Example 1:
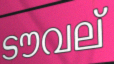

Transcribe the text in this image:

ടൗവല്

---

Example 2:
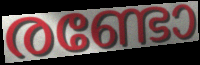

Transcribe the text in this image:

രണ്ടോ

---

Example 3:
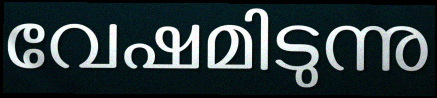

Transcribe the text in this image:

വേഷമിടുന്നു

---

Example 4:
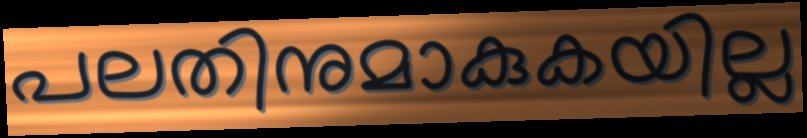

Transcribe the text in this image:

പലതിനുമാകുകയില്ല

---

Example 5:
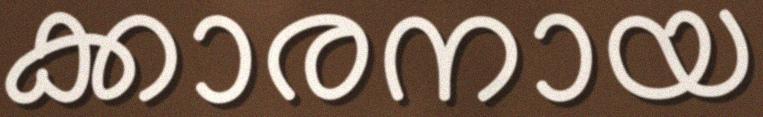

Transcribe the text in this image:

ക്കാരനായ